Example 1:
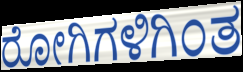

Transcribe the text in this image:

ರೋಗಿಗಳಿಗಿಂತ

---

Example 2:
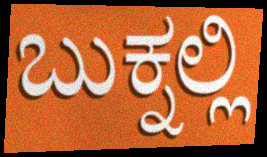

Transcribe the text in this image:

ಬುಕ್ನಲ್ಲಿ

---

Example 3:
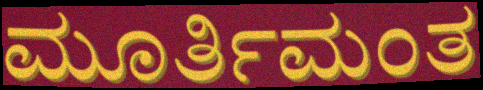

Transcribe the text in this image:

ಮೂರ್ತಿಮಂತ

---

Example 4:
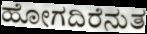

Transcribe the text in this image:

ಹೋಗದಿರೆನುತ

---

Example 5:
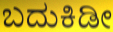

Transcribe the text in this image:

ಬದುಕಿಡೀ